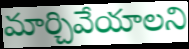
మార్చివేయాలని